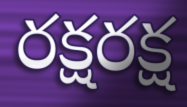
రక్షరక్ష